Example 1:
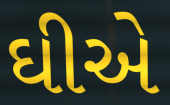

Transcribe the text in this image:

ઘીએ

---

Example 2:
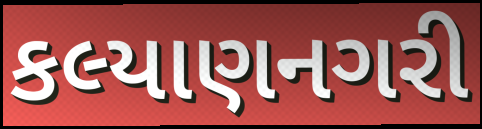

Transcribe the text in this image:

કલ્યાણનગરી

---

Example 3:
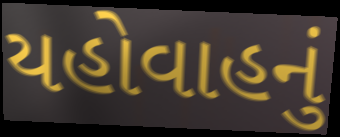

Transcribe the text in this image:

યહોવાહનું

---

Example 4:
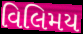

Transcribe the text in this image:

વિલિમય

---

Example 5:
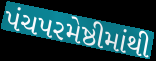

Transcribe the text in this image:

પંચપરમેષ્ઠીમાંથી